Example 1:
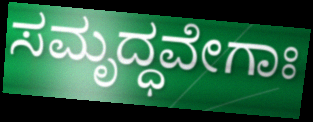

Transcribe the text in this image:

ಸಮೃದ್ಧವೇಗಾಃ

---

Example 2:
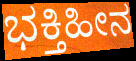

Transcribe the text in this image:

ಭಕ್ತಿಹೀನ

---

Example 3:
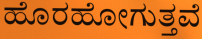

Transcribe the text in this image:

ಹೊರಹೋಗುತ್ತವೆ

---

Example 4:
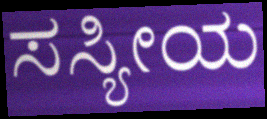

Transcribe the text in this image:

ಸಸ್ಯೀಯ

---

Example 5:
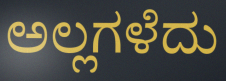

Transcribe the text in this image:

ಅಲ್ಲಗಳೆದು